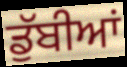
ਡੁੱਬੀਆਂ